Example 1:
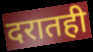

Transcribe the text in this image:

दरातही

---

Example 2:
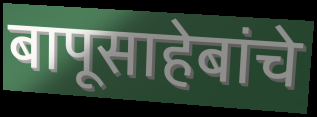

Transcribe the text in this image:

बापूसाहेबांचे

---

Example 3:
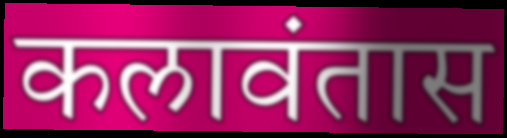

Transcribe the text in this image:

कलावंतास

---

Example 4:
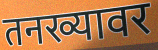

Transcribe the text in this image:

तनख्यावर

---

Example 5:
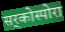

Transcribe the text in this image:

सर्कोस्पोरा